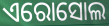
ଏରୋସୋଲ